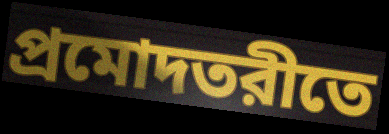
প্রমোদতরীতে